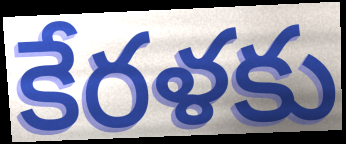
కేరళకు